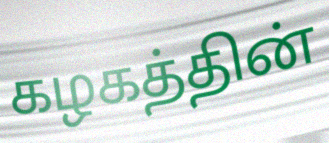
கழகத்தின்